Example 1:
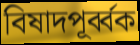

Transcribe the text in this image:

বিষাদপূর্ব্বক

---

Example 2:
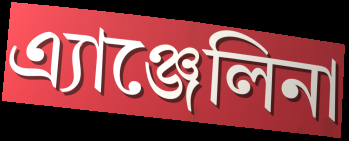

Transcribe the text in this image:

এ্যাঞ্জেলিনা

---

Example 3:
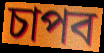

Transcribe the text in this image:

চাপব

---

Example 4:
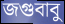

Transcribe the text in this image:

জগুবাবু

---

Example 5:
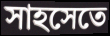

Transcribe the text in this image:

সাহসেতে